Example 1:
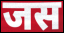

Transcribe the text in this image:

जस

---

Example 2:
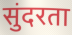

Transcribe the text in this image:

सुंदरता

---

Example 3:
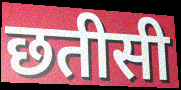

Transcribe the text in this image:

छतीसी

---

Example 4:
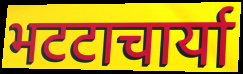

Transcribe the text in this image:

भटटाचार्या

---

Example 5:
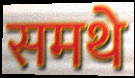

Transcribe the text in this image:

समथे